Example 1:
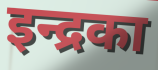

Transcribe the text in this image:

इन्द्रका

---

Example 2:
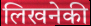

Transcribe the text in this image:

लिखनेकी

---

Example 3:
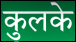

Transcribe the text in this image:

कुलके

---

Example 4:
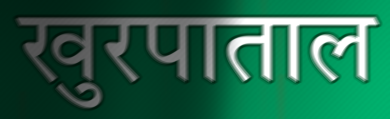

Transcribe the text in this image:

खुरपाताल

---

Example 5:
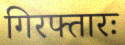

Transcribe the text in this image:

गिरफ्तारः